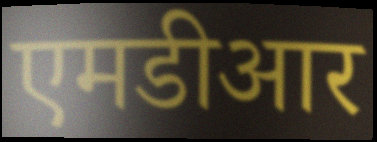
एमडीआर